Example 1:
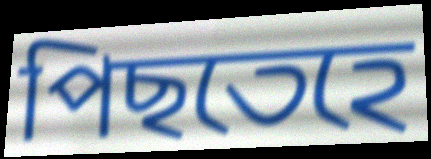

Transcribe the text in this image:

পিছতেহে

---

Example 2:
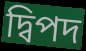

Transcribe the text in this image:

দ্বিপদ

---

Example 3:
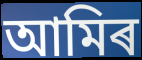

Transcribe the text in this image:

আমিৰ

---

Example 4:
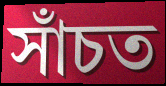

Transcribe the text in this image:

সাঁচত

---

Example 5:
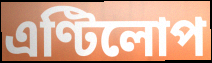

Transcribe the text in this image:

এণ্টিলোপ